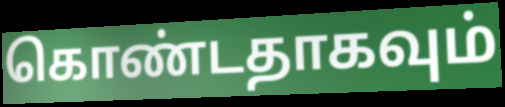
கொண்டதாகவும்